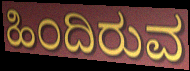
ಹಿಂದಿರುವ